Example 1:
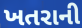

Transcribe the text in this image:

ખતરાની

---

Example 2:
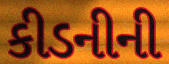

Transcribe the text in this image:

કીડનીની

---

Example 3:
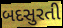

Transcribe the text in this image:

બદસુરતી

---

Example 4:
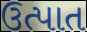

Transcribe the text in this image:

ઉત્પાત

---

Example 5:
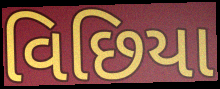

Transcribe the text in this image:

વિછિયા